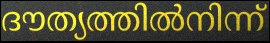
ദൗത്യത്തിൽനിന്ന്